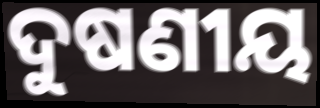
ଦୁଷଣୀୟ